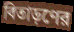
বিতাড়ণের